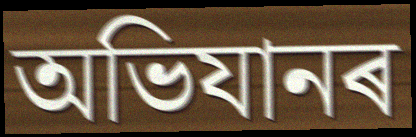
অভিযানৰ